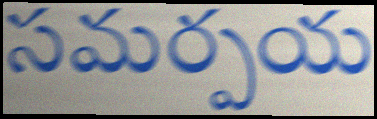
సమర్పయ